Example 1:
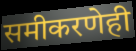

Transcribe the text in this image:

समीकरणेही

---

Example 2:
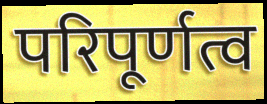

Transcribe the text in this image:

परिपूर्णत्व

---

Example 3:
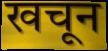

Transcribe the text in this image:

खचून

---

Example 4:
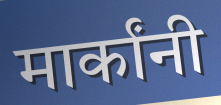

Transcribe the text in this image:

मार्कांनी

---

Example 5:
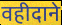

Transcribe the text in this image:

वहीदाने